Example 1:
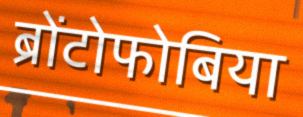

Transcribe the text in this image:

ब्रोंटोफोबिया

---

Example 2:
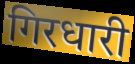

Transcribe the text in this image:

गिरधारी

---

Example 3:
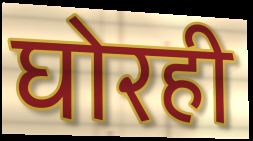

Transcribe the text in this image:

घोरही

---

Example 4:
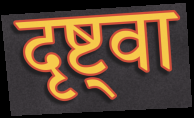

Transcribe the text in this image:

दृष्ट्वा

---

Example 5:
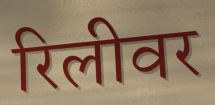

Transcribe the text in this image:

रिलीवर